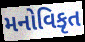
મનોવિકૃત